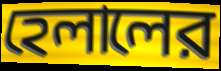
হেলালের